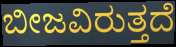
ಬೀಜವಿರುತ್ತದೆ